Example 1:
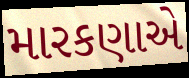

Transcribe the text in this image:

મારકણાએ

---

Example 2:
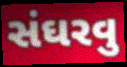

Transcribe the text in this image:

સંઘરવુ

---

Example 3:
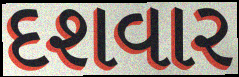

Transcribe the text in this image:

દશવાર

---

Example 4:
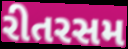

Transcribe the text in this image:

રીતરસમ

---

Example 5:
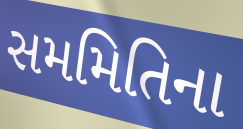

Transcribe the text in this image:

સમમિતિના